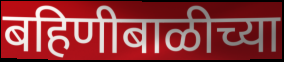
बहिणीबाळीच्या